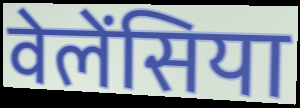
वेलेंसिया